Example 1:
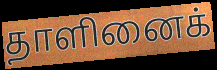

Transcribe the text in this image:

தாளினைக்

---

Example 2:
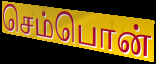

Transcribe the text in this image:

செம்பொன்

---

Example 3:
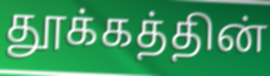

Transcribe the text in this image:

தூக்கத்தின்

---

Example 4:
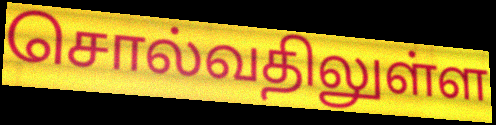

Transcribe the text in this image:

சொல்வதிலுள்ள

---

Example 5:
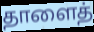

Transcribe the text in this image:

தாளைத்